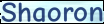
Shaoron